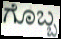
ಗೊಬ್ಬ